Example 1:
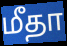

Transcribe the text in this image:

மீதா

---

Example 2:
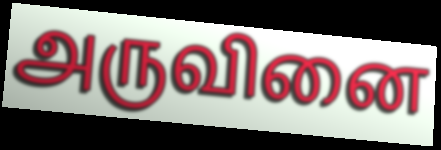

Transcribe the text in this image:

அருவினை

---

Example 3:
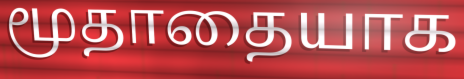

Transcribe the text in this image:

மூதாதையாக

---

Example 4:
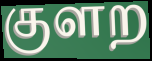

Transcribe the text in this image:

குளற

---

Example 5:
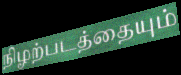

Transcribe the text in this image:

நிழற்படத்தையும்